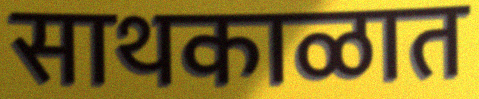
साथकाळात